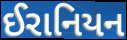
ઈરાનિયન